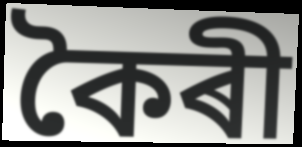
কৈৰী